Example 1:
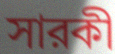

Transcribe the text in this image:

সারকী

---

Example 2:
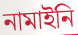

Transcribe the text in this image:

নামাইনি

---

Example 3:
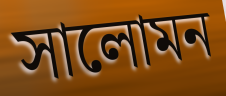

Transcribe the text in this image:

সালোমন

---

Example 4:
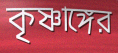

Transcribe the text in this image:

কৃষ্ণাঙ্গের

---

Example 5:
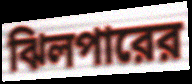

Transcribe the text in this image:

ঝিলপারের